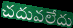
చదువలేదు